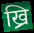
ख्रि